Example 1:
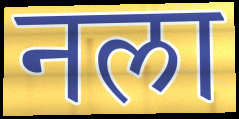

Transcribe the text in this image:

नला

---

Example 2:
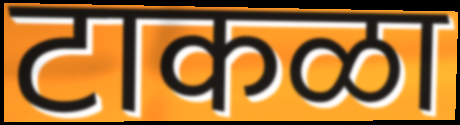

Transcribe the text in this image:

टाकळा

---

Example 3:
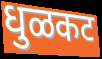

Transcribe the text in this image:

धुळकट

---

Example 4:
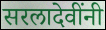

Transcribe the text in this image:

सरलादेवींनी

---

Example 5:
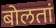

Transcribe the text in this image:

बोलतां